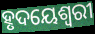
ହୃଦୟେଶ୍ୱରୀ